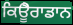
ਕਿਊੈਰਾਡਾਨ